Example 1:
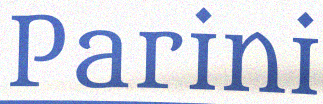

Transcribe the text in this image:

Parini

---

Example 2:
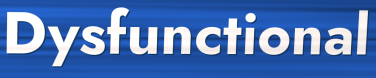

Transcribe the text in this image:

Dysfunctional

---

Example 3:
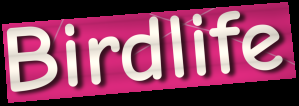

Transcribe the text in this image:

Birdlife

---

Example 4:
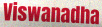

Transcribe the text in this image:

Viswanadha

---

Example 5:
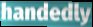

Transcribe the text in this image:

handedly